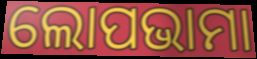
ଲୋପଭାମା